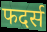
फदर्स